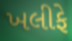
ખલીફે